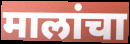
मालांचा